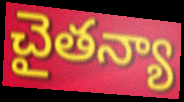
చైతన్యా